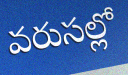
వరుసల్లో